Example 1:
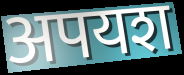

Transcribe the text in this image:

अपयश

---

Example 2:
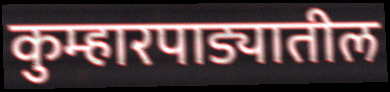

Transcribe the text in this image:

कुम्हारपाड्यातील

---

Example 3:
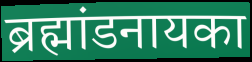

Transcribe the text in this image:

ब्रह्मांडनायका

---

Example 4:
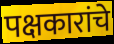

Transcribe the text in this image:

पक्षकारांचे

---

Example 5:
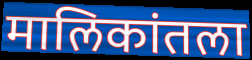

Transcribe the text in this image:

मालिकांतला